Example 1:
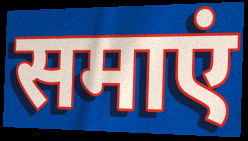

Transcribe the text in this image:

समाएं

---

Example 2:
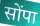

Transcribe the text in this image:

सोंपा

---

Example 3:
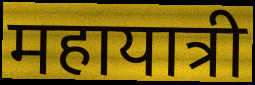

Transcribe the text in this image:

महायात्री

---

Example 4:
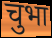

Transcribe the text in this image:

चुभा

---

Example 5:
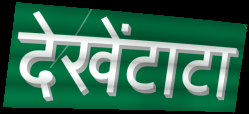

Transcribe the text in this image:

देखेंटाटा